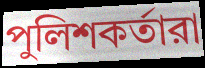
পুলিশকর্তারা